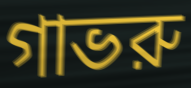
গাভৰু